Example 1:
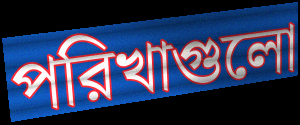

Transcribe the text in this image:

পরিখাগুলো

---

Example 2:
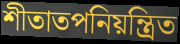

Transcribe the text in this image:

শীতাতপনিয়ন্ত্রিত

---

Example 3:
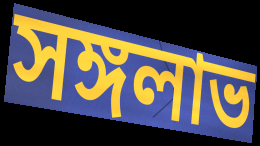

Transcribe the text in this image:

সঙ্গলাভ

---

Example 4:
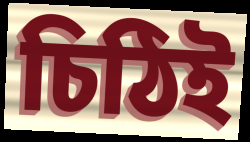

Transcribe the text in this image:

চিঠিই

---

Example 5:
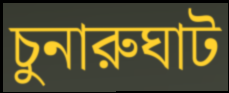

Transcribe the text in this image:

চুনারুঘাট